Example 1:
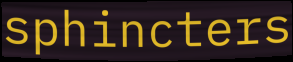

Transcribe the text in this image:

sphincters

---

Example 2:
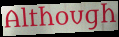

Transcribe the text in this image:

Although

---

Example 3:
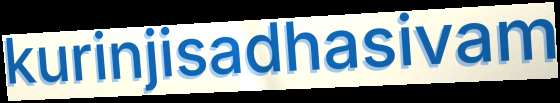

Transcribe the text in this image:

kurinjisadhasivam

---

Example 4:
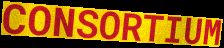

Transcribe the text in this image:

CONSORTIUM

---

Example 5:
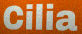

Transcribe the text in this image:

Cilia